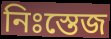
নিঃস্তেজ